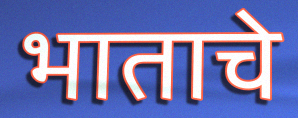
भाताचे